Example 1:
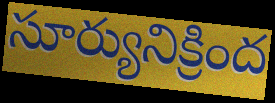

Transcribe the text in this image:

సూర్యునిక్రింద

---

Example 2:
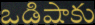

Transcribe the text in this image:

ఒడిషాకు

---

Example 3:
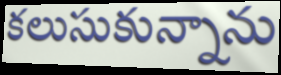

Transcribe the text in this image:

కలుసుకున్నాను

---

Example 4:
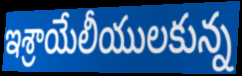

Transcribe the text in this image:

ఇశ్రాయేలీయులకున్న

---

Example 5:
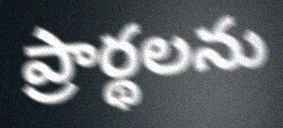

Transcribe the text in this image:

ప్రార్థలను